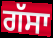
ਗੱਸਾ